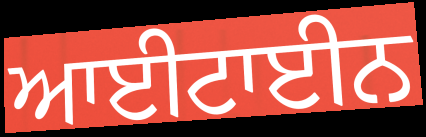
ਆਈਟਾਈਨ